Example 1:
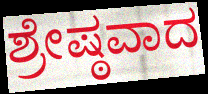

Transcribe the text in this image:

ಶ್ರೇಷ್ಠವಾದ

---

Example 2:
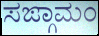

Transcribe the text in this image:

ಸಙ್ಗಾಮಂ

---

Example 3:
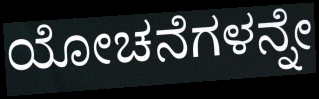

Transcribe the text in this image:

ಯೋಚನೆಗಳನ್ನೇ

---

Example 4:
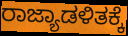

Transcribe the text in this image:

ರಾಜ್ಯಾಡಳಿತಕ್ಕೆ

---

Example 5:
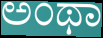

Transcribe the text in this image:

ಅಂಥಾ